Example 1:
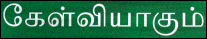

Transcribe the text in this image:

கேள்வியாகும்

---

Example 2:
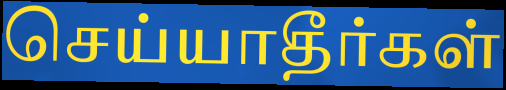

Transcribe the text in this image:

செய்யாதீர்கள்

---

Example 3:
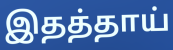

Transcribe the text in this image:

இதத்தாய்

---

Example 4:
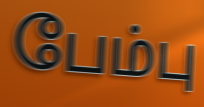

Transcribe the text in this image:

பேம்பு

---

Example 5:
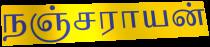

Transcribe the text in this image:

நஞ்சராயன்